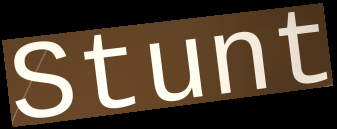
Stunt